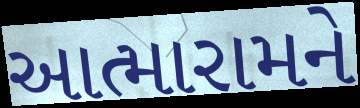
આત્મારામને